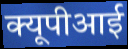
क्यूपीआई